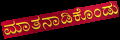
ಮಾತನಾಡಿಕೊಂಡು